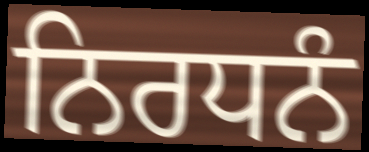
ਨਿਰਧਨੰ